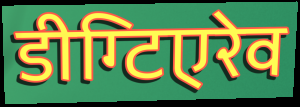
डीग्टिएरेव